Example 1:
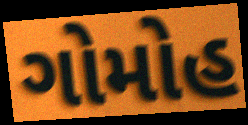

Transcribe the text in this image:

ગોમોહ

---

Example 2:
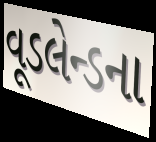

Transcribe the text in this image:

વૂડલેન્ડના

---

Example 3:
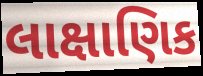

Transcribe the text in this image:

લાક્ષાણિક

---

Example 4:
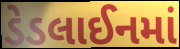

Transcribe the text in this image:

ડેડલાઈનમાં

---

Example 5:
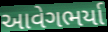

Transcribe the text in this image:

આવેગભર્યા